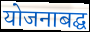
योजनाबद्घ